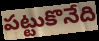
పట్టుకొనేది